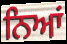
ਨਿਆਂ